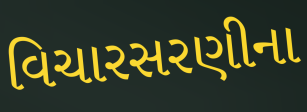
વિચારસરણીના